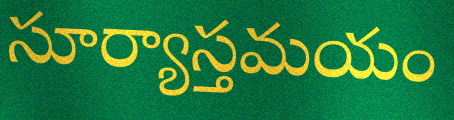
సూర్యాస్తమయం